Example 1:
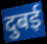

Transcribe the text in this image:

दुबई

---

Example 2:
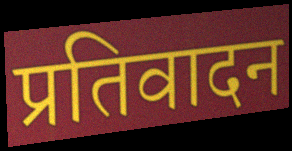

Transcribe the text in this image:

प्रतिवादन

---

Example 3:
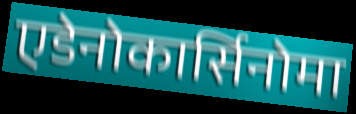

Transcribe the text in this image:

एडेनोकार्सिनोमा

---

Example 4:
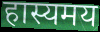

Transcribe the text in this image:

हास्यमय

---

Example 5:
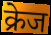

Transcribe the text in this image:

क्रेज